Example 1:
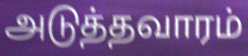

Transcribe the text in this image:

அடுத்தவாரம்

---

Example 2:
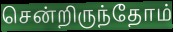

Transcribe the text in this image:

சென்றிருந்தோம்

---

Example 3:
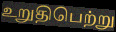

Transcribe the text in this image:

உறுதிபெற்று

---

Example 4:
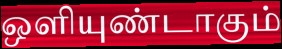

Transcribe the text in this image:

ஒளியுண்டாகும்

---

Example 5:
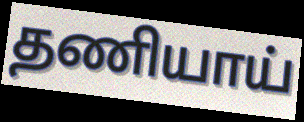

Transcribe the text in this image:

தணியாய்